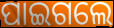
ପାଇଗଲେ